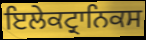
ਇਲੇਕਟ੍ਰਾਨਿਕਸ